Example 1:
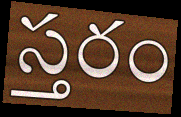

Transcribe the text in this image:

స్తరం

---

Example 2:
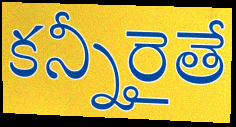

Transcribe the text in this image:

కన్నీరైతే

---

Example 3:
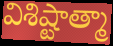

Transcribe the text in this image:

విశిష్టాత్మా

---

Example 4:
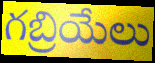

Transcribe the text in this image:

గబ్రియేలు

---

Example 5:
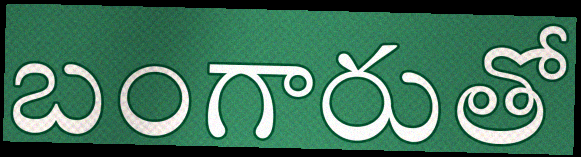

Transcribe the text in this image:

బంగారుతో